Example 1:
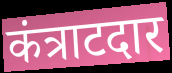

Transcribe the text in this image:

कंत्राटदार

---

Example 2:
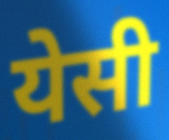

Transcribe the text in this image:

येसी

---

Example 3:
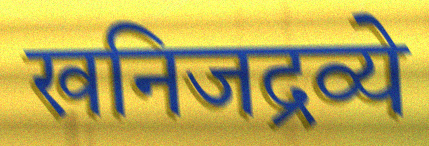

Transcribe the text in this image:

खनिजद्रव्ये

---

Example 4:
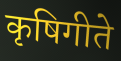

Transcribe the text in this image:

कृषिगीते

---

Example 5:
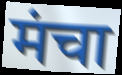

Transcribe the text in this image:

मंचा